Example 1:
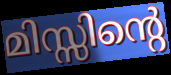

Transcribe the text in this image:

മിസ്സിന്റെ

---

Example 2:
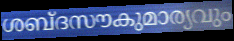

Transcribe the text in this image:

ശബ്ദസൗകുമാര്യവും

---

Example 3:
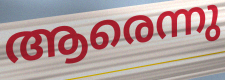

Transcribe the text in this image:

ആരെന്നു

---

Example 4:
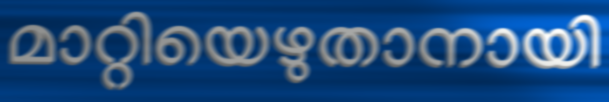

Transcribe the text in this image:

മാറ്റിയെഴുതാനായി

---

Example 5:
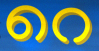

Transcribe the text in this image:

റെ